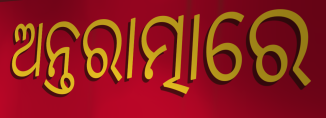
ଅନ୍ତରାତ୍ମାରେ